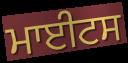
ਮਾਈਟਸ